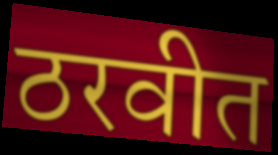
ठरवीत